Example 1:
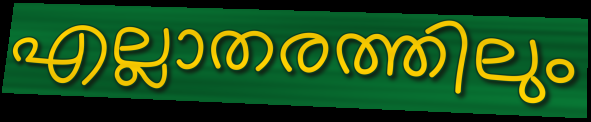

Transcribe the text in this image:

എല്ലാതരത്തിലും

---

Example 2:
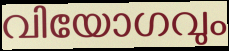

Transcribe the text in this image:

വിയോഗവും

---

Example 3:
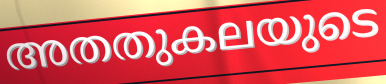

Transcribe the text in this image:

അതതുകലയുടെ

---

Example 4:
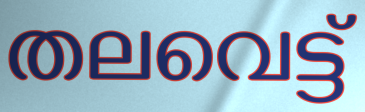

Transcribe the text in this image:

തലവെട്ട്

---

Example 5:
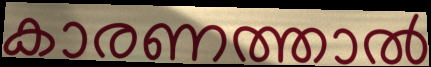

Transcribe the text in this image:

കാരണത്താൽ